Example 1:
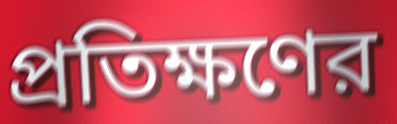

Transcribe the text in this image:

প্রতিক্ষণের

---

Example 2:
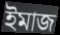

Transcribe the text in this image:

ইমাজ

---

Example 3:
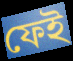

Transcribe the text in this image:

ফেই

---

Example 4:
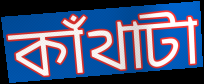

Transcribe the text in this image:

কাঁথাটা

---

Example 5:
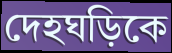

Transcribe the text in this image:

দেহঘড়িকে